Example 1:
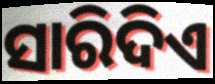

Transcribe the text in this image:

ସାରିଦିଏ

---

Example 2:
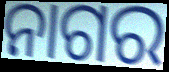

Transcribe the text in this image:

ନାଗର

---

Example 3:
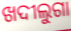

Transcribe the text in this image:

ଖଦୀଲୁଗା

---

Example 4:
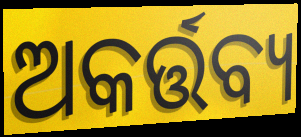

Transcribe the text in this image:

ଅକର୍ତ୍ତବ୍ୟ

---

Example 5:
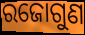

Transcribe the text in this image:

ରଜୋଗୁଣ